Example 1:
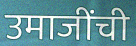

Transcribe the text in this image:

उमाजींची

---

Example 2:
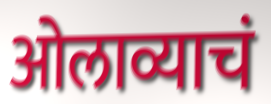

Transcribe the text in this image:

ओलाव्याचं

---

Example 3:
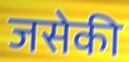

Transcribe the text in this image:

जसेकी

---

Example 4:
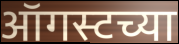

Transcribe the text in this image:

ऑगस्टच्या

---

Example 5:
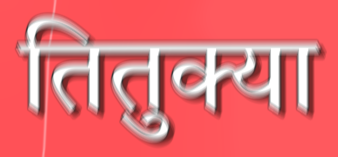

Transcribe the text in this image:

तितुक्या